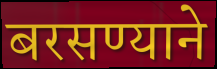
बरसण्याने